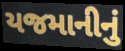
યજમાનીનું